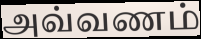
அவ்வணம்